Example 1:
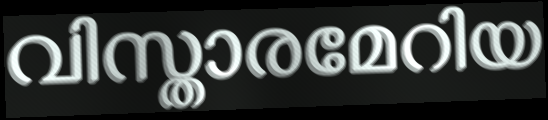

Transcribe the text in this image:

വിസ്താരമേറിയ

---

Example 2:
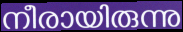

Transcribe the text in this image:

നീരായിരുന്നു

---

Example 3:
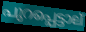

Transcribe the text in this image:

പുറപ്പെട്ടാല്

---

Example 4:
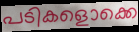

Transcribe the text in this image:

പടികളൊക്കെ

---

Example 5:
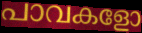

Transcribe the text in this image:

പാവകളോ